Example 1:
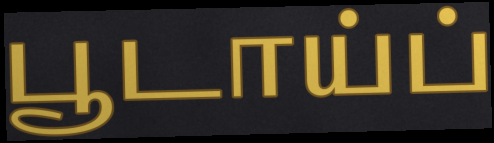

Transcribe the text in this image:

பூடாய்ப்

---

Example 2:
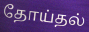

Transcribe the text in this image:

தோய்தல்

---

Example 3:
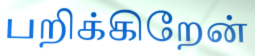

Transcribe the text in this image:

பறிக்கிறேன்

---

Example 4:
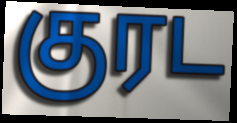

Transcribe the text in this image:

குரட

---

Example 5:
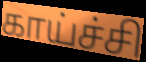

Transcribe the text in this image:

காய்ச்சி